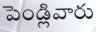
పెండ్లివారు